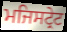
ਮਜਿਸਟ੍ਰੇਟ